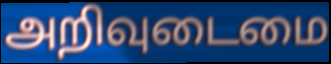
அறிவுடைமை